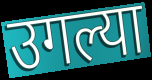
उगल्या